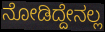
ನೋಡಿದ್ದೇನಲ್ಲ